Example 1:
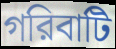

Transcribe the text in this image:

গরিবাটি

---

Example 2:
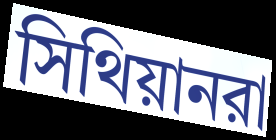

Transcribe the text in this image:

সিথিয়ানরা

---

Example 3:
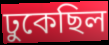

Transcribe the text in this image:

ঢুকেছিল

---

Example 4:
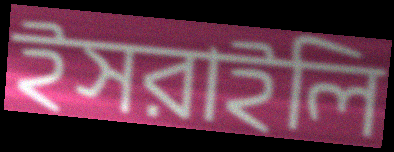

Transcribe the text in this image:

ইসরাইলি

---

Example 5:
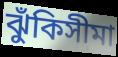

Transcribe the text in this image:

ঝুঁকিসীমা